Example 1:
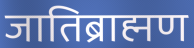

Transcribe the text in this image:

जातिब्राह्मण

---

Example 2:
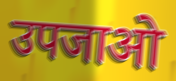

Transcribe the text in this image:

उपजाओ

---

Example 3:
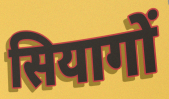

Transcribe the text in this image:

सियागों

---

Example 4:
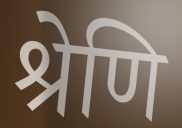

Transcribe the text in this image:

श्रेणि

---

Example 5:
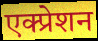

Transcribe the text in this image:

एक्प्रेशन